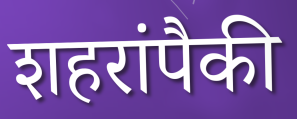
शहरांपैकी